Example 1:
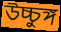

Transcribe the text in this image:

উচ্চুঙ্গ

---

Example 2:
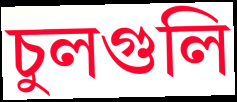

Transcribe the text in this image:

চুলগুলি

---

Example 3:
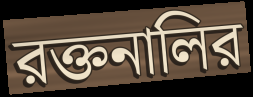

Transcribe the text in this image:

রক্তনালির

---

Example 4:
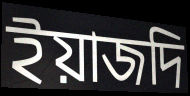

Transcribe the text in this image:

ইয়াজদি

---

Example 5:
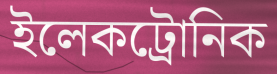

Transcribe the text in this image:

ইলেকট্রোনিক